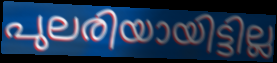
പുലരിയായിട്ടില്ല